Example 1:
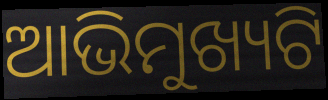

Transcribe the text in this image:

ଆଭିମୁଖ୍ୟଟି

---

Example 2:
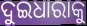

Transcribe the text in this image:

ଦୁଇଧାରାକୁ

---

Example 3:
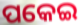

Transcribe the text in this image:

ପକେଇ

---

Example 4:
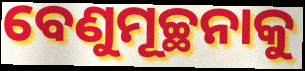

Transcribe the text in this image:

ବେଣୁମୂଚ୍ଛନାକୁ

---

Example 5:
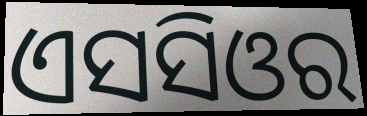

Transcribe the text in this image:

ଏସସିଓର